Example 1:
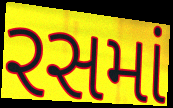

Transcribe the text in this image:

રસમાં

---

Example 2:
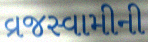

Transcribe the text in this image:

વ્રજસ્વામીની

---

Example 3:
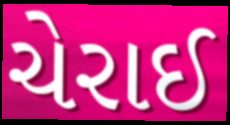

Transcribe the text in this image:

ચેરાઈ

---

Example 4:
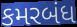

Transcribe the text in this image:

કમરબંધ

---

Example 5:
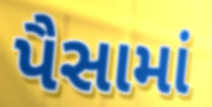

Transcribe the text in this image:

પૈસામાં